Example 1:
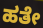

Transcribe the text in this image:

ಹತೇ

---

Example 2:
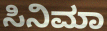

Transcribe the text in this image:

ಸಿನಿಮಾ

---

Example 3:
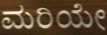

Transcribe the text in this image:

ಮರಿಯೇ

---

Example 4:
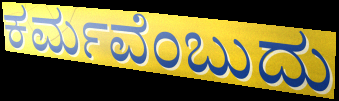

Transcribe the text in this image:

ಕರ್ಮವೆಂಬುದು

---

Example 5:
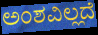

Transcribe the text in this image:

ಅಂಶವಿಲ್ಲದೆ